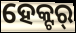
ହେକ୍ଟର୍